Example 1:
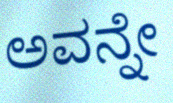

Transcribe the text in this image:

ಅವನ್ನೇ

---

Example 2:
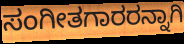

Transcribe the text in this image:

ಸಂಗೀತಗಾರರನ್ನಾಗಿ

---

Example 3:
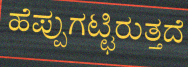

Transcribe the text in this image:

ಹೆಪ್ಪುಗಟ್ಟಿರುತ್ತದೆ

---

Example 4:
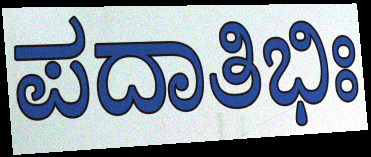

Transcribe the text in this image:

ಪದಾತಿಭಿಃ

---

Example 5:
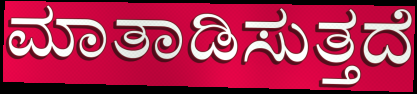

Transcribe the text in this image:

ಮಾತಾಡಿಸುತ್ತದೆ